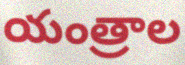
యంత్రాల